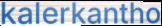
kalerkantho